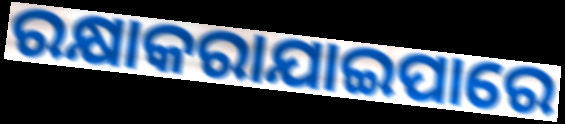
ରକ୍ଷାକରାଯାଇପାରେ